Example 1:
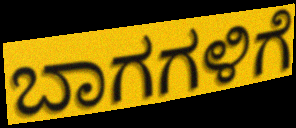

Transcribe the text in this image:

ಬಾಗಗಳಿಗೆ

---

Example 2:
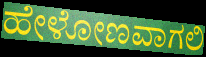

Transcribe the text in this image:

ಹೇಳೋಣವಾಗಲಿ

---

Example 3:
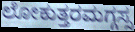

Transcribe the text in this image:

ಲೋಕುತ್ತರಮಗ್ಗಸ್ಸ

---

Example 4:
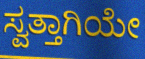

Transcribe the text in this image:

ಸ್ವತ್ತಾಗಿಯೇ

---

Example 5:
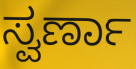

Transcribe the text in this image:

ಸ್ವರ್ಣಾ